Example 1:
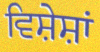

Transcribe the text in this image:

ਵਿਸ਼ੇਸ਼ਾਂ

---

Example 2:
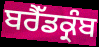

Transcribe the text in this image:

ਬਰੈੱਡਕ੍ਰੰਬ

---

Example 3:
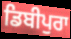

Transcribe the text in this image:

ਡਿਬੀਪੁਰਾ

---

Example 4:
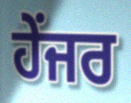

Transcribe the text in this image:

ਹੇਂਜਰ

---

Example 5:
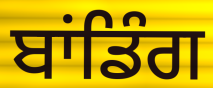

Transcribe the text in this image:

ਬਾਂਡਿੰਗ